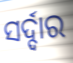
ସର୍ଦ୍ଦାର